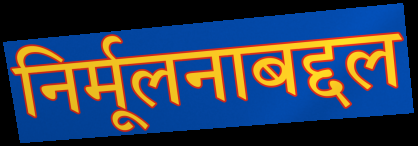
निर्मूलनाबद्दल